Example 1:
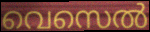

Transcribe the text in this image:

വെസെൽ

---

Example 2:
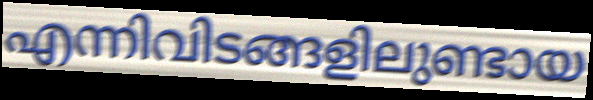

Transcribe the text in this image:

എന്നിവിടങ്ങളിലുണ്ടായ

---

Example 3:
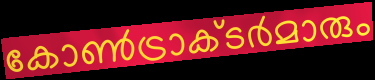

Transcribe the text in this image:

കോൺട്രാക്ടർമാരും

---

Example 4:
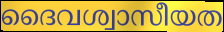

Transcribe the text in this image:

ദൈവശ്വാസീയത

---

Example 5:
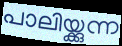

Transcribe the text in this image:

പാലിയ്ക്കുന്ന